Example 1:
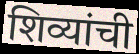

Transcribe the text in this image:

शिव्यांची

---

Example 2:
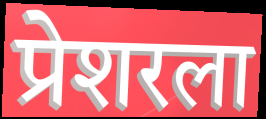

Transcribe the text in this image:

प्रेशरला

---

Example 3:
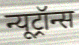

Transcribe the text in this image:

न्यूट्रॉन्स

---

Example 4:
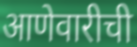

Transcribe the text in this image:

आणेवारीची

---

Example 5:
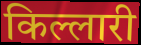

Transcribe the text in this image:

किल्लारी